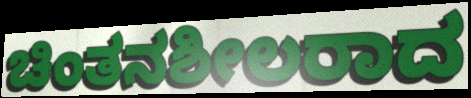
ಚಿಂತನಶೀಲರಾದ